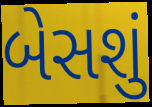
બેસશું